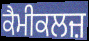
ਕੈਮੀਕਲਜ਼